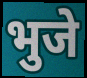
भुजे